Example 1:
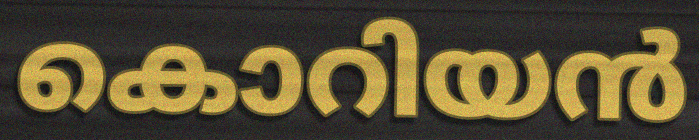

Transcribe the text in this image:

കൊറിയൻ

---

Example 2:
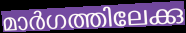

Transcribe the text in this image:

മാർഗത്തിലേക്കു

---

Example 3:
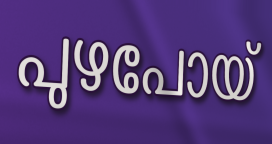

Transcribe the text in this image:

പുഴപോയ്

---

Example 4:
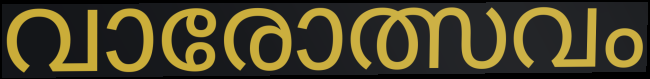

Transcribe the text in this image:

വാരോത്സവം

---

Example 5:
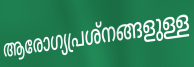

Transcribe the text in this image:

ആരോഗ്യപ്രശ്നങ്ങളുള്ള